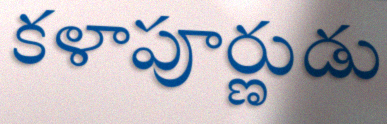
కళాపూర్ణుడు